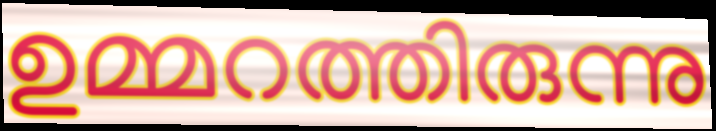
ഉമ്മറത്തിരുന്നു